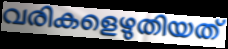
വരികളെഴുതിയത്